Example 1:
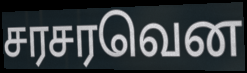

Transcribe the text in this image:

சரசரவென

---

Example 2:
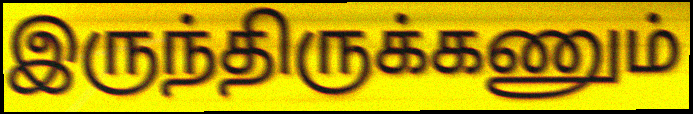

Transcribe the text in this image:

இருந்திருக்கணும்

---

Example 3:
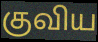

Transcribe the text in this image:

குவிய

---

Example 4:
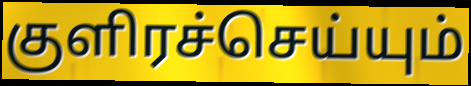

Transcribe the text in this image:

குளிரச்செய்யும்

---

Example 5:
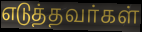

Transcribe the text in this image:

எடுத்தவர்கள்